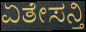
ಏತೇಸನ್ತಿ